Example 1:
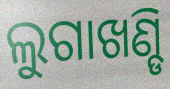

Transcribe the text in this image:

ଲୁଗାଖଣ୍ଡି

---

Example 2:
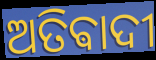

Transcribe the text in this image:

ଅତିଵାଦୀ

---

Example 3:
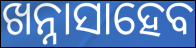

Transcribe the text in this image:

ଖନ୍ନାସାହେବ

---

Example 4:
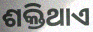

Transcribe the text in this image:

ଶକ୍ତିଥାଏ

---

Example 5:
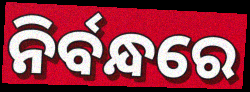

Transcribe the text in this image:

ନିର୍ବନ୍ଧରେ